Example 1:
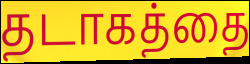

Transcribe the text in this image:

தடாகத்தை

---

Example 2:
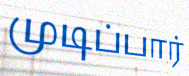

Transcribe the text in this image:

முடிப்பார்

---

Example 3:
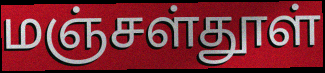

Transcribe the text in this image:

மஞ்சள்தூள்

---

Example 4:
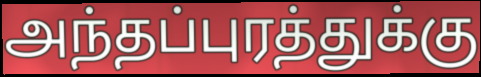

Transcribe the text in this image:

அந்தப்புரத்துக்கு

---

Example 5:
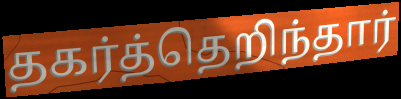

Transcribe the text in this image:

தகர்த்தெறிந்தார்